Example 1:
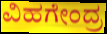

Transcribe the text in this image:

ವಿಹಗೇಂದ್ರ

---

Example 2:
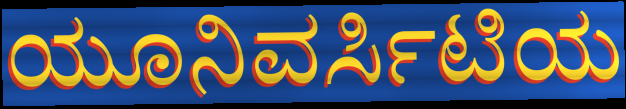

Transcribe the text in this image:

ಯೂನಿವರ್ಸಿಟಿಯ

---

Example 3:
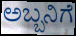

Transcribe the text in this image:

ಅಬ್ಬನಿಗೆ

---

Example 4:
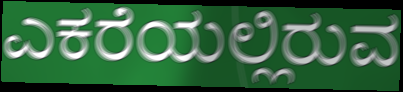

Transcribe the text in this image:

ಎಕರೆಯಲ್ಲಿರುವ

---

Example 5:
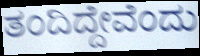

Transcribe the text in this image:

ತಂದಿದ್ದೇವೆಂದು